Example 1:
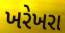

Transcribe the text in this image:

ખરેખરા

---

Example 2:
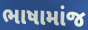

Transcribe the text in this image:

ભાષામાંજ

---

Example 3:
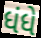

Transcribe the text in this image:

ધંધે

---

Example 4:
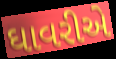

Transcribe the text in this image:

ઘાવરીએ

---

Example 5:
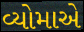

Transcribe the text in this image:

વ્યોમાએ